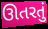
ઊતરતું